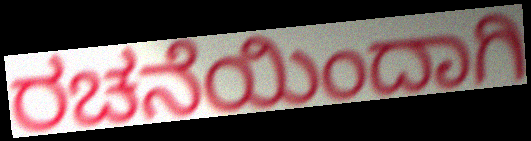
ರಚನೆಯಿಂದಾಗಿ